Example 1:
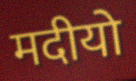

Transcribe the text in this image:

मदीयो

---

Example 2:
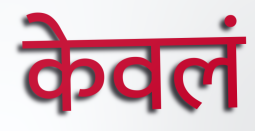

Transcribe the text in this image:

केवलं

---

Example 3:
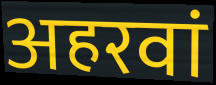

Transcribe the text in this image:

अहरवां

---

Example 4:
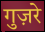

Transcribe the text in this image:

गुज़रे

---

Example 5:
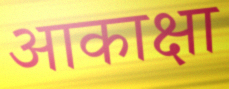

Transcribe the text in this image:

आकाक्षा